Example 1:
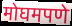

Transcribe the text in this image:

मोघमपणे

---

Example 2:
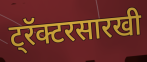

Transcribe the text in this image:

ट्रॅक्टरसारखी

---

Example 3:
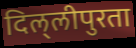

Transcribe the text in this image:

दिल्लीपुरता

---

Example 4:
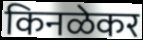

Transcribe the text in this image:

किनळेकर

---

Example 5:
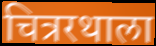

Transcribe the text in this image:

चित्ररथाला